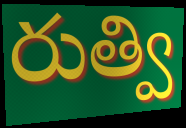
రుత్వి